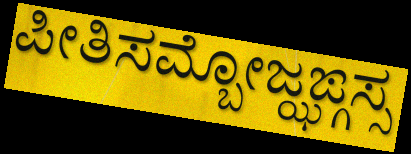
ಪೀತಿಸಮ್ಬೋಜ್ಝಙ್ಗಸ್ಸ